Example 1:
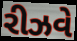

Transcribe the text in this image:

રીઝવે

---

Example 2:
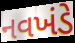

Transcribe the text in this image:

નવખંડે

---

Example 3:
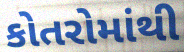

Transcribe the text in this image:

કોતરોમાંથી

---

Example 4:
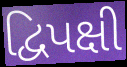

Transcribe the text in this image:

દ્વિપક્ષી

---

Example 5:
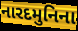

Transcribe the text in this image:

નારદમુનિના